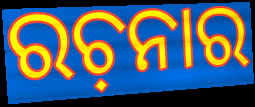
ରଚ଼ନାର